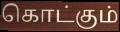
கொட்கும்